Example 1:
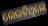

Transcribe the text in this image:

ଲେଉଟିଥିଲେ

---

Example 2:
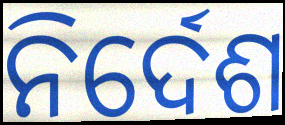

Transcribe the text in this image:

ନିର୍ଦେଶ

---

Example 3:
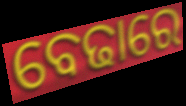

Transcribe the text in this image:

ବେଢାରେ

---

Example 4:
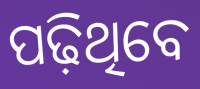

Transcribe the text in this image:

ପଢ଼ିଥିବେ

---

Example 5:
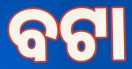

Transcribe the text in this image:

ବଟା